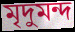
মৃদুমন্দ